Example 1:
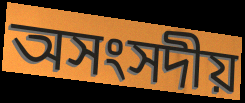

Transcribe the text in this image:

অসংসদীয়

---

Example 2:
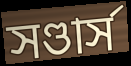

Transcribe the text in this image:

সণ্ডার্স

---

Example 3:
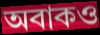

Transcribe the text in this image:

অবাকও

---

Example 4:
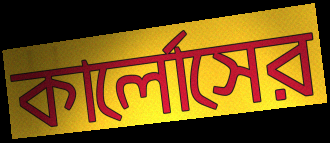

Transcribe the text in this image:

কার্লোসের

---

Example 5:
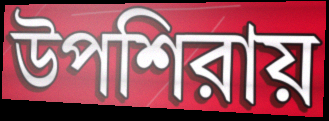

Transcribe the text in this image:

উপশিরায়